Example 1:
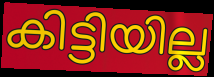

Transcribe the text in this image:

കിട്ടിയില്ല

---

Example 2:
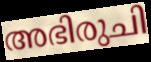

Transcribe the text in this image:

അഭിരുചി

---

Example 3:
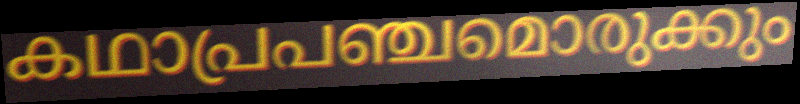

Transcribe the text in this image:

കഥാപ്രപഞ്ചമൊരുക്കും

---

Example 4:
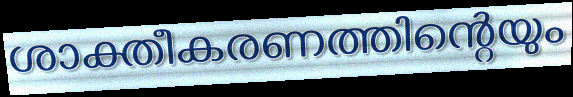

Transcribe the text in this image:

ശാക്തീകരണത്തിന്റെയും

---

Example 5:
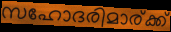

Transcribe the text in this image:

സഹോദരിമാര്ക്ക്